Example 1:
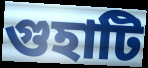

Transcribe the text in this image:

গুহাটি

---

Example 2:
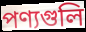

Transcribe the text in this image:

পণ্যগুলি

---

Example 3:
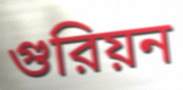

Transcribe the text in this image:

গুরিয়ন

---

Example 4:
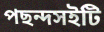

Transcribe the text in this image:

পছন্দসইটি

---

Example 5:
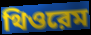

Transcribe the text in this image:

থিওরেম